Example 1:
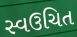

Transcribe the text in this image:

સ્વઉચિત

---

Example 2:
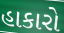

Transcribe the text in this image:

હાકારો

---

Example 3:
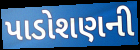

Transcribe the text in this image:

પાડોશણની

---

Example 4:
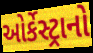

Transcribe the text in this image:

ઓર્કેસ્ટ્રાનો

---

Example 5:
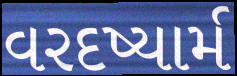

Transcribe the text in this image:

વરદષ્યાર્મ